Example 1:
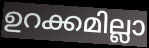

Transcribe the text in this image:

ഉറക്കമില്ലാ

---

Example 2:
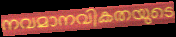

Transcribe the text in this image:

നവമാനവികതയുടെ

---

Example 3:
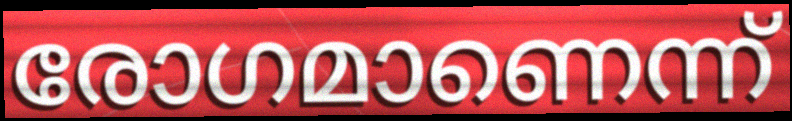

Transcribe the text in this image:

രോഗമാണെന്ന്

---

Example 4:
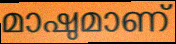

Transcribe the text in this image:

മാഷുമാണ്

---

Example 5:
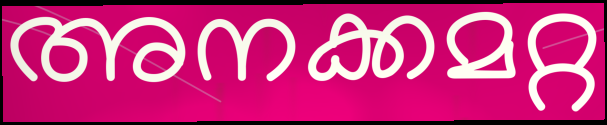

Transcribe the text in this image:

അനക്കമറ്റ